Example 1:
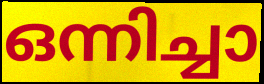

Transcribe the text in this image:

ഒന്നിച്ചാ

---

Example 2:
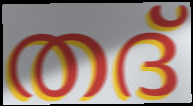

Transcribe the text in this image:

തദ്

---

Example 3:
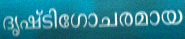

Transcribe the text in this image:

ദൃഷ്ടിഗോചരമായ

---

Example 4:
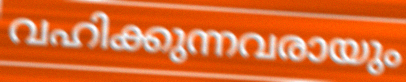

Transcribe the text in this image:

വഹിക്കുന്നവരായും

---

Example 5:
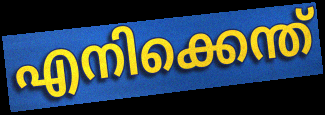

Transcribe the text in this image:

എനിക്കെന്ത്